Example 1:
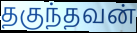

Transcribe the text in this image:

தகுந்தவன்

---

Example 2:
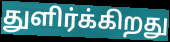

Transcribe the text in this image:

துளிர்க்கிறது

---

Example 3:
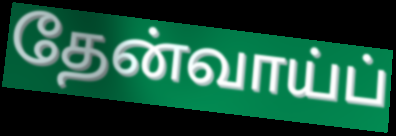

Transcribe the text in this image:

தேன்வாய்ப்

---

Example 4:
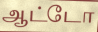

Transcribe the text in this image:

ஆட்டோ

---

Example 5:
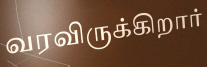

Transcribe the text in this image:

வரவிருக்கிறார்